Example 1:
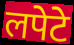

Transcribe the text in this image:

लपेटे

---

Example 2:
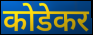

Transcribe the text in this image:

कोडेकर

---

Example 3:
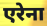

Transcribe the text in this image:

एरेना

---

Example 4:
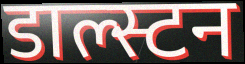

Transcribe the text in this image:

डाल्स्टन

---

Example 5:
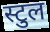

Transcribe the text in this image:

स्टुल